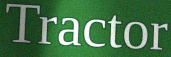
Tractor